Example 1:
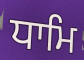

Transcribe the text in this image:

ਧਾਮਿ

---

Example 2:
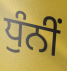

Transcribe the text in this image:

ਧੁੰਨੀਂ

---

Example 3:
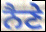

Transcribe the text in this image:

ਨੈਣੇ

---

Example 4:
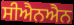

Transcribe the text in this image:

ਸੀਐਨਐਨ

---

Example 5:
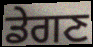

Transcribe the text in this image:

ਡੇਗਣ